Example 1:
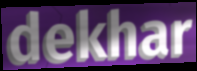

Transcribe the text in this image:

dekhar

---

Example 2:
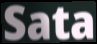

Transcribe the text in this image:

Sata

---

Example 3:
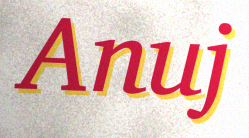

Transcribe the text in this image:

Anuj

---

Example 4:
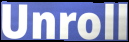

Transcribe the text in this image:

Unroll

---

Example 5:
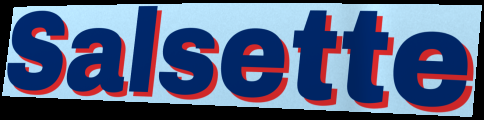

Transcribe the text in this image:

Salsette